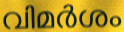
വിമർശം